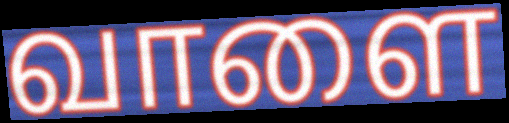
வாளை